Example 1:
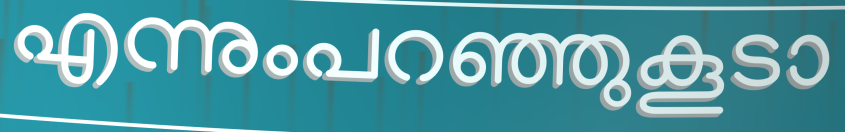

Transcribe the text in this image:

എന്നുംപറഞ്ഞുകൂടാ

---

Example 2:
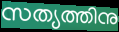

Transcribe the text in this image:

സത്യത്തിനു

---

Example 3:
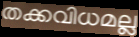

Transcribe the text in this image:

തക്കവിധമല്ല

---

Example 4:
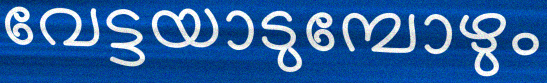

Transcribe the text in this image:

വേട്ടയാടുമ്പോഴും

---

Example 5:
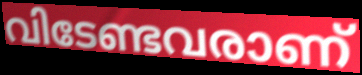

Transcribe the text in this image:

വിടേണ്ടവരാണ്